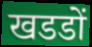
खडडों